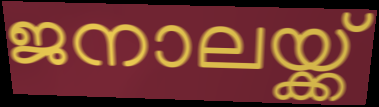
ജനാലയ്ക്ക്